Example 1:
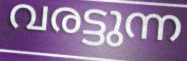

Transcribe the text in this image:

വരട്ടുന്ന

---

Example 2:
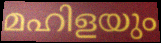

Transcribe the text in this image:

മഹിളയും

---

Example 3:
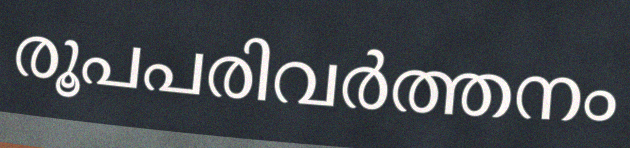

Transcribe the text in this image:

രൂപപരിവർത്തനം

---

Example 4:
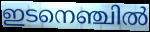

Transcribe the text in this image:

ഇടനെഞ്ചിൽ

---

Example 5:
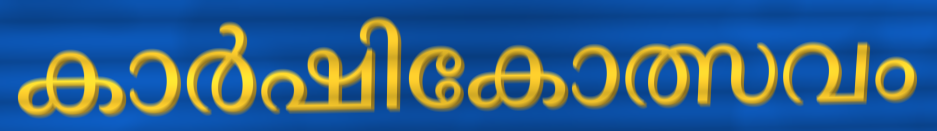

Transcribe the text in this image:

കാർഷികോത്സവം